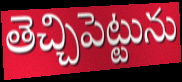
తెచ్చిపెట్టును